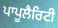
ਪਾਪੂਲੈਰਿਟੀ